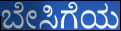
ಬೇಸಿಗೆಯ